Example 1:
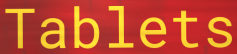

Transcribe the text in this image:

Tablets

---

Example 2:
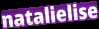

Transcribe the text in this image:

natalielise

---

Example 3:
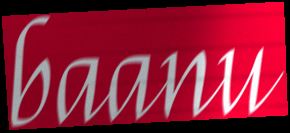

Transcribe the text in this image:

baanu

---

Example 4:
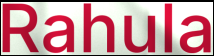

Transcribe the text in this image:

Rahula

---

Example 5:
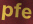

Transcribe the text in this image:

pfe